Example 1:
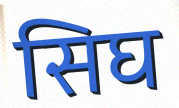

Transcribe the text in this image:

सिघ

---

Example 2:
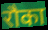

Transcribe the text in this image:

रौका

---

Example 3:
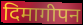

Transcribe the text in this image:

दिमागीपन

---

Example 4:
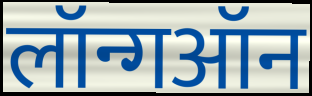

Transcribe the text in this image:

लॉन्गऑन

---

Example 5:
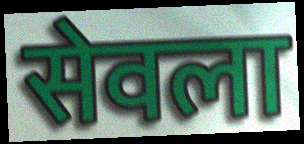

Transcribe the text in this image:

सेवला